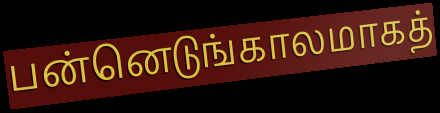
பன்னெடுங்காலமாகத்